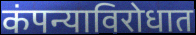
कंपन्याविरोधात